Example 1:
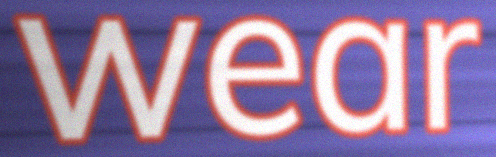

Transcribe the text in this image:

wear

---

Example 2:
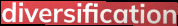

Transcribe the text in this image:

diversification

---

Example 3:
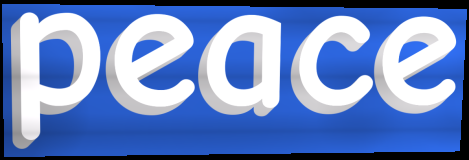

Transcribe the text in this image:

peace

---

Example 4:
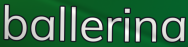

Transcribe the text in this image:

ballerina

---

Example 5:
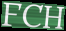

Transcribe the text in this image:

FCH